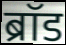
ब्रॉड